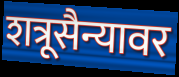
शत्रूसैन्यावर